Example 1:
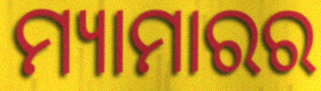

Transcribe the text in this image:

ମ୍ୟାମାରର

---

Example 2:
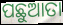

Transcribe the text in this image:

ପଛୁଆତା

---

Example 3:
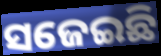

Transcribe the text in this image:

ସଜେଇଛି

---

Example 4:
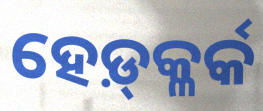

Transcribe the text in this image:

ହେଡ଼୍‍କ୍ଳର୍କ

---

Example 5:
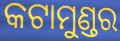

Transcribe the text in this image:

କଟାମୁଣ୍ଡର